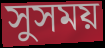
সুসময়